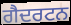
ਗੈਦਰਟਨ